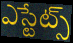
ఎస్టేట్స్